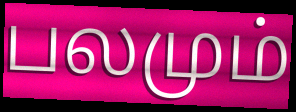
பலமும்